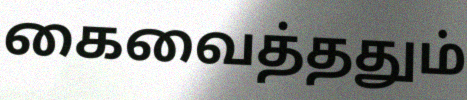
கைவைத்ததும்